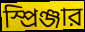
স্প্রিঞ্জার